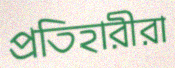
প্রতিহারীরা